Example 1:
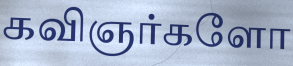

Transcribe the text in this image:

கவிஞர்களோ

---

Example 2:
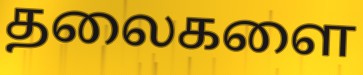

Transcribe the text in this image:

தலைகளை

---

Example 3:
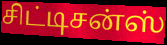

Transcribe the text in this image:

சிட்டிசன்ஸ்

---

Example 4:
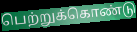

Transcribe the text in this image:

பெற்றுக்கொண்டு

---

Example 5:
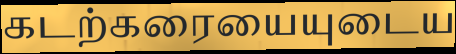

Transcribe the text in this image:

கடற்கரையையுடைய